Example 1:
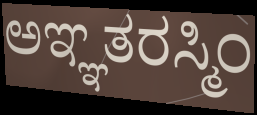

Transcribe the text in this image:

ಅಞ್ಞತರಸ್ಮಿಂ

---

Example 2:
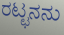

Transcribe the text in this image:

ರಟ್ಟನನು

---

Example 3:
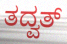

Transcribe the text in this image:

ತದ್ವತ್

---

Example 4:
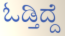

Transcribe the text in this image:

ಓಡ್ತಿದ್ದೆ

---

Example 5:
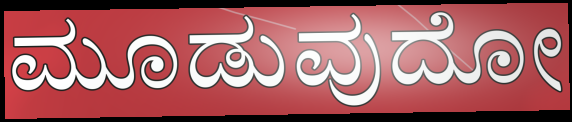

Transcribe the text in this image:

ಮೂಡುವುದೋ